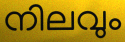
നിലവും